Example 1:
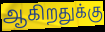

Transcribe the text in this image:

ஆகிறதுக்கு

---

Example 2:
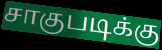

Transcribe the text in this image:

சாகுபடிக்கு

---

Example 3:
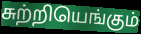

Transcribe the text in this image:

சுற்றியெங்கும்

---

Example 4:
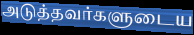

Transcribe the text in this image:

அடுத்தவர்களுடைய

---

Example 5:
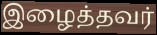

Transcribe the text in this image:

இழைத்தவர்